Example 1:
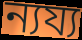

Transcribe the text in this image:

ন্যয্য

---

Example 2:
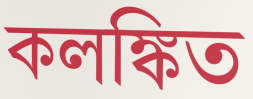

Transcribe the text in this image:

কলঙ্কিত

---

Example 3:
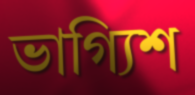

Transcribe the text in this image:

ভাগ্যিশ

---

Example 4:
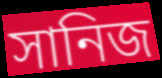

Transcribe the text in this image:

সানিজ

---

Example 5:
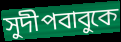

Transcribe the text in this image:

সুদীপবাবুকে